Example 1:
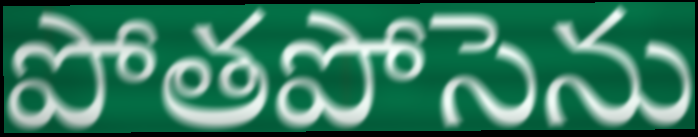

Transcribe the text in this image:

పోతపోసెను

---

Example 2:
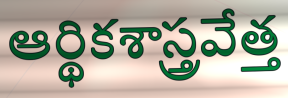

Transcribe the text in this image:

ఆర్థికశాస్త్రవేత్త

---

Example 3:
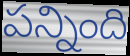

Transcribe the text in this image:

పన్నింది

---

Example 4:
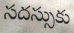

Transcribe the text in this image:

సదస్సుకు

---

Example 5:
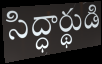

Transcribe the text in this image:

సిద్ధార్థుడి